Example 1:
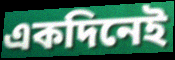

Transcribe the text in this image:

একদিনেই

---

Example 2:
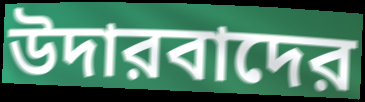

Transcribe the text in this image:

উদারবাদের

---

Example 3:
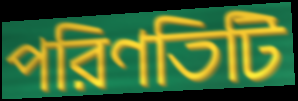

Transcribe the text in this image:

পরিণতিটি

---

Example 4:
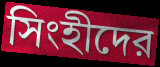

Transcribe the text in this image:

সিংহীদের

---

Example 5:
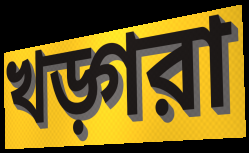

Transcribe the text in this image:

খড়্গরা